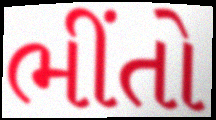
ભીંતો